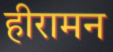
हीरामन